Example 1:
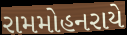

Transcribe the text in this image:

રામમોહનરાયે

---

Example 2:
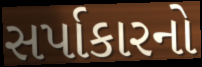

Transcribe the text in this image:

સર્પાકારનો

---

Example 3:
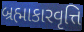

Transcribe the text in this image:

બ્રહ્માકારવૃત્તિ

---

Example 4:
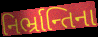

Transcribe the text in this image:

નિર્ભ્રાન્તિના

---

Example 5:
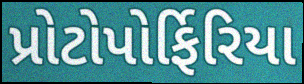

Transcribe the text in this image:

પ્રોટોપોર્ફિરિયા